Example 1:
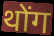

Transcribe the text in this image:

थोंग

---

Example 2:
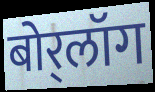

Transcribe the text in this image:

बोर्‌लॉग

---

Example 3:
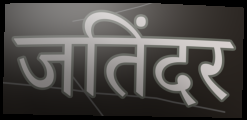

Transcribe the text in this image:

जतिंदर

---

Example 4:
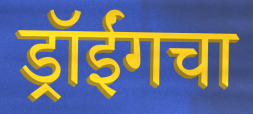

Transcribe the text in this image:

ड्रॉईंगचा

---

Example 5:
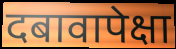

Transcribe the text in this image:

दबावापेक्षा